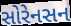
સોરેનસન